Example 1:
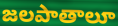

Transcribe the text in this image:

జలపాతాలూ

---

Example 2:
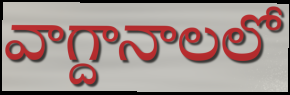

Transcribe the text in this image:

వాగ్దానాలలో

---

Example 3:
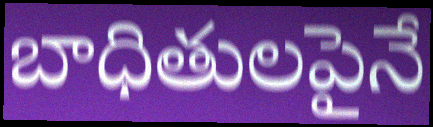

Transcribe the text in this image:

బాధితులపైనే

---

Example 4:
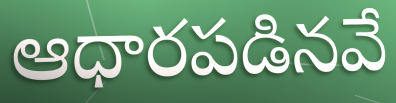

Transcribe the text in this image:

ఆధారపడినవే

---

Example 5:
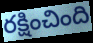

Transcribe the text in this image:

రక్షించింది